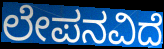
ಲೇಪನವಿದೆ